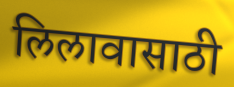
लिलावासाठी